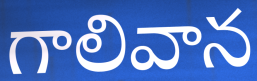
గాలివాన